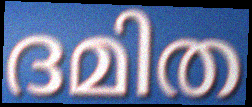
ദമിത